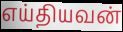
எய்தியவன்